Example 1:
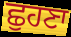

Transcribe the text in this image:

ਛੁਹਣਾ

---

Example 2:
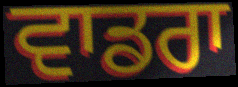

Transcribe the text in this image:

ਵਾਡਰਾ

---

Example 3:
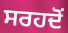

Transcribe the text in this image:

ਸਰਹਦੋਂ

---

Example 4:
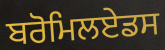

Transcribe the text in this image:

ਬਰੋਮਿਲਏਡਸ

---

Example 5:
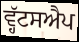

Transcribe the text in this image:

ਵ੍ਹੱਟਸਐਪ